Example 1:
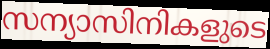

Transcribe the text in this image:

സന്യാസിനികളുടെ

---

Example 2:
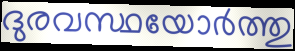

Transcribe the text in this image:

ദുരവസ്ഥയോർത്തു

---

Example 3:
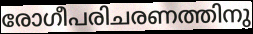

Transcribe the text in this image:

രോഗീപരിചരണത്തിനു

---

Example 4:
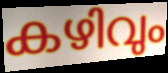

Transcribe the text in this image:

കഴിവും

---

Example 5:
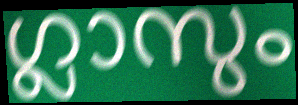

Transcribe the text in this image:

ഗ്ലാസും